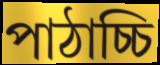
পাঠাচ্চি